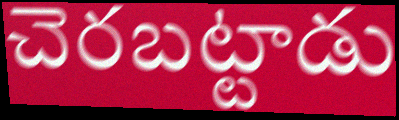
చెరబట్టాడు